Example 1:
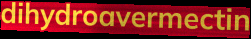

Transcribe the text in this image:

dihydroavermectin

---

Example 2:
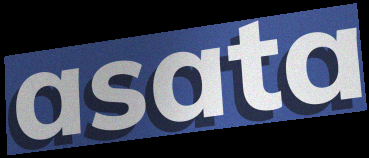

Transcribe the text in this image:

asata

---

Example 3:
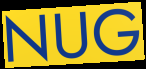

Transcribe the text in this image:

NUG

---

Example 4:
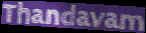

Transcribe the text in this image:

Thandavam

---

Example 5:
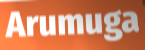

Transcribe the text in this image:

Arumuga